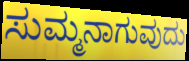
ಸುಮ್ಮನಾಗುವುದು